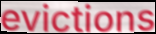
evictions